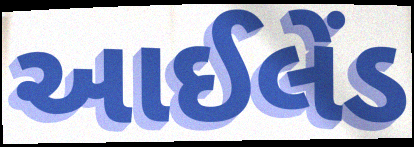
આઈલેંડ